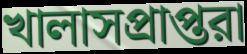
খালাসপ্রাপ্তরা